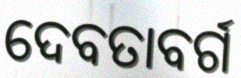
ଦେବତାବର୍ଗ